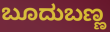
ಬೂದುಬಣ್ಣ